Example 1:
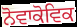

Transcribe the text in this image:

ਨੋਵਾਕੋਵਿਕ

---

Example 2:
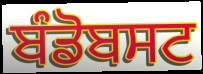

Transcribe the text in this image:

ਬੰਡੋਬਸਟ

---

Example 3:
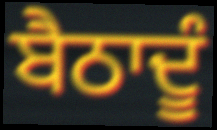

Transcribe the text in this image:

ਬੈਠਾਦੂੰ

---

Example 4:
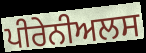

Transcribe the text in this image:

ਪੀਰੇਨੀਅਲਸ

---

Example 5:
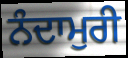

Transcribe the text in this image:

ਨੰਦਾਮੁਰੀ